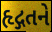
હૃદ્ગતને